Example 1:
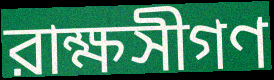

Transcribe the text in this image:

রাক্ষসীগণ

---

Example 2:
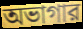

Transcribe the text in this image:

অভাগার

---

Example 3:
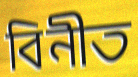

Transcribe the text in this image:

বিনীত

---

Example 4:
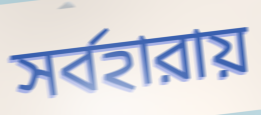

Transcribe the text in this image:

সর্বহারায়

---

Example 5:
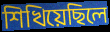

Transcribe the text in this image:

শিখিয়েছিলে